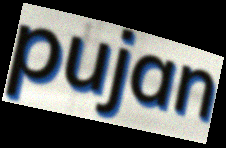
pujan